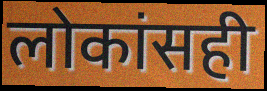
लोकांसही